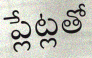
ప్లేట్లతో